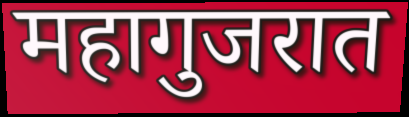
महागुजरात